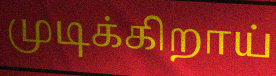
முடிக்கிறாய்